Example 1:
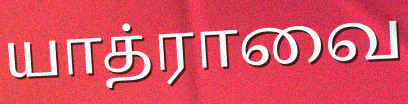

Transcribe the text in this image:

யாத்ராவை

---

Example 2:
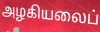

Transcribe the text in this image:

அழகியலைப்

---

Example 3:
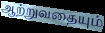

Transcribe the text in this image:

ஆற்றுவதையும்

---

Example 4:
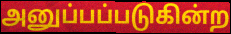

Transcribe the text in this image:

அனுப்பப்படுகின்ற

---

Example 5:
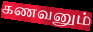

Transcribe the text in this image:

கணவனும்